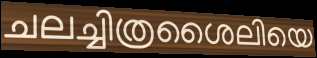
ചലച്ചിത്രശൈലിയെ